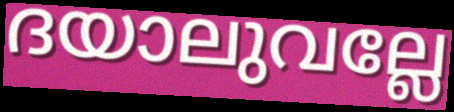
ദയാലുവല്ലേ